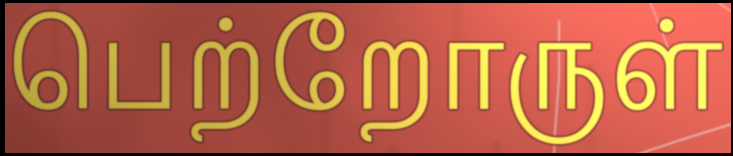
பெற்றோருள்